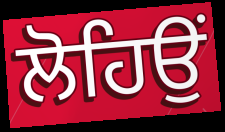
ਲੋਹਿਉਂ